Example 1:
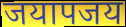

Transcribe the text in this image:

जयापजय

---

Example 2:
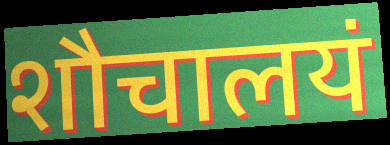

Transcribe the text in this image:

शौचालयं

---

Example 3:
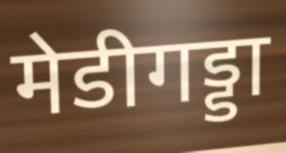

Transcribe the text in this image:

मेडीगड्डा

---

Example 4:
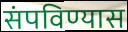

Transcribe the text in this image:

संपविण्यास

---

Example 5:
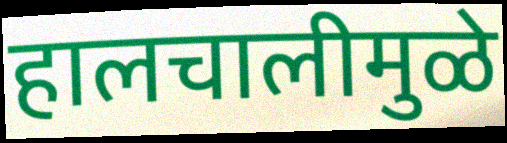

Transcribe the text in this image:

हालचालीमुळे